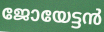
ജോയേട്ടൻ